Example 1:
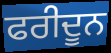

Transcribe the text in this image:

ਫਰੀਦੂਨ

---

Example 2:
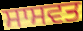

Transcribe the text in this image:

ਸਾਸਵਤ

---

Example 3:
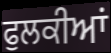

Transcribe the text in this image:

ਫੁਲਕੀਆਂ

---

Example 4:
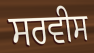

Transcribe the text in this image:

ਸਰਵੀਸ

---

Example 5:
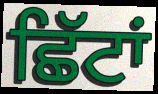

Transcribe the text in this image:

ਛਿੱਟਾਂ